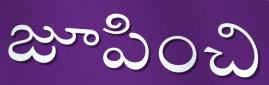
జూపించి